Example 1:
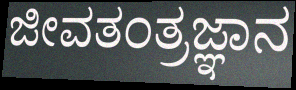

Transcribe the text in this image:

ಜೀವತಂತ್ರಜ್ಞಾನ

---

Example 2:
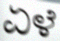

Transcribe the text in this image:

ಏಳೆ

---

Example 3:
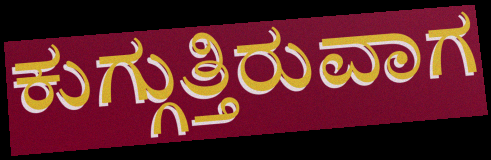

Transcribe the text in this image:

ಕುಗ್ಗುತ್ತಿರುವಾಗ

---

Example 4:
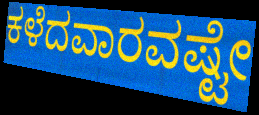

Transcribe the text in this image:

ಕಳೆದವಾರವಷ್ಟೇ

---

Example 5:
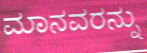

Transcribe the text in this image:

ಮಾನವರನ್ನು